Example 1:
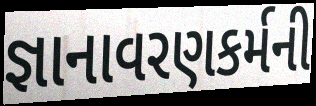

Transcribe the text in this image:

જ્ઞાનાવરણકર્મની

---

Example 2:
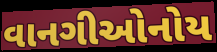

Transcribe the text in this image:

વાનગીઓનોય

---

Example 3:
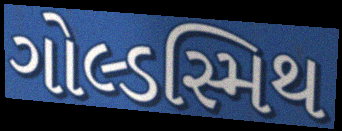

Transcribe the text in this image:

ગોલ્ડસ્મિથ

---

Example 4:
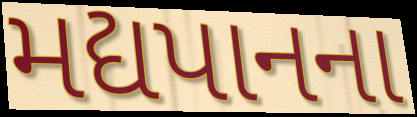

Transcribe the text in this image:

મદ્યપાનના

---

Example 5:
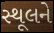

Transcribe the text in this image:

સ્થૂલને